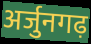
अर्जुनगढ़